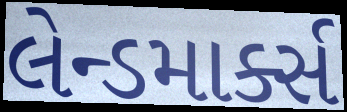
લેન્ડમાર્ક્સ